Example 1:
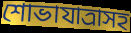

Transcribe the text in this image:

শোভাযাত্রাসহ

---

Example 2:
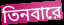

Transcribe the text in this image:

তিনবারে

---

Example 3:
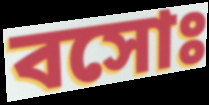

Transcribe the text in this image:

বসোঃ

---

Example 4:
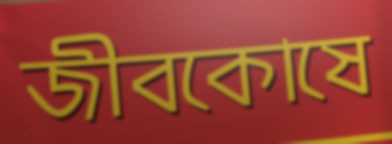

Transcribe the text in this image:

জীবকোষে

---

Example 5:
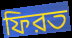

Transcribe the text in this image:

ফিরত